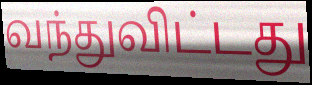
வந்துவிட்டது